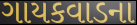
ગાયકવાડના